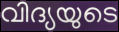
വിദ്യയുടെ